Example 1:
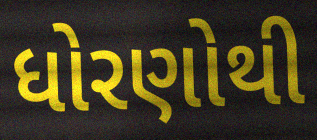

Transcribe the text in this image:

ધોરણોથી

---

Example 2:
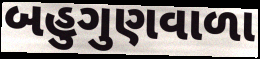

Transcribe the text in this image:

બહુગુણવાળા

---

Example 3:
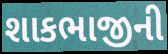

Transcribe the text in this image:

શાકભાજીની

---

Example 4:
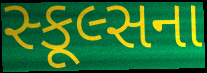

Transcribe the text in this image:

સ્કૂલ્સના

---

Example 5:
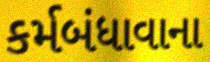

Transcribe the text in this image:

કર્મબંધાવાના